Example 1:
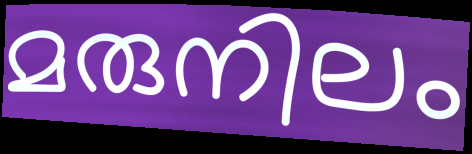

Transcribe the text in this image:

മരുനിലം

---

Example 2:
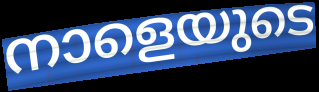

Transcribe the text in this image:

നാളെയുടെ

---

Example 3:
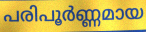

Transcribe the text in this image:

പരിപൂർണ്ണമായ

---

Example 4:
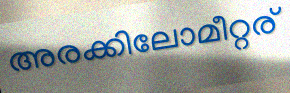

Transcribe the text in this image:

അരക്കിലോമീറ്റര്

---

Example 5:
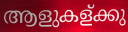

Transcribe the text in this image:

ആളുകള്ക്കു